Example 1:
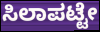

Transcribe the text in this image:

ಸಿಲಾಪಟ್ಟೇ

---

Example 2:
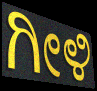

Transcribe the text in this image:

ಗೀಳಿ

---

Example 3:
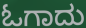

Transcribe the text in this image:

ಓಗಾದು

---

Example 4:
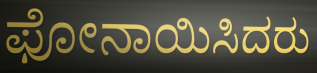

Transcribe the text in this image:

ಫೋನಾಯಿಸಿದರು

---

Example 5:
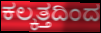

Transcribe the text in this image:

ಕಲ್ಕತ್ತದಿಂದ